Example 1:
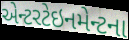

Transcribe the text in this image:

એન્ટરટેઇનમેન્ટના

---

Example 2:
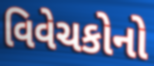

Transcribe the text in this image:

વિવેચકોનો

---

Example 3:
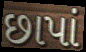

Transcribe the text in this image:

છાપાં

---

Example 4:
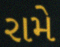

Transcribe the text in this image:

રામે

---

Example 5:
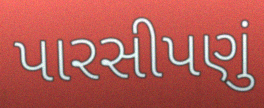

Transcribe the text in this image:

પારસીપણું